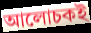
আলোচকই